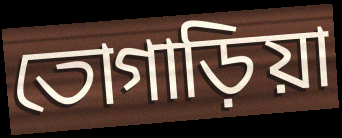
তোগাড়িয়া